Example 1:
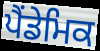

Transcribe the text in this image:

ਪੈਂਡੇਮਿਕ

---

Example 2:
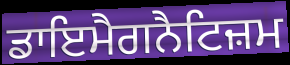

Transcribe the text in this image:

ਡਾਇਮੈਗਨੈਟਿਜ਼ਮ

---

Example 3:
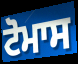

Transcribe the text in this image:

ਟੋਮਾਸ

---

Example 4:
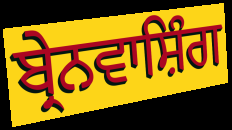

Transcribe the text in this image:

ਬ੍ਰੇਨਵਾਸ਼ਿੰਗ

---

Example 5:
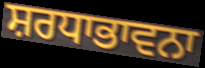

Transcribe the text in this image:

ਸ਼ਰਧਾਭਾਵਨਾ